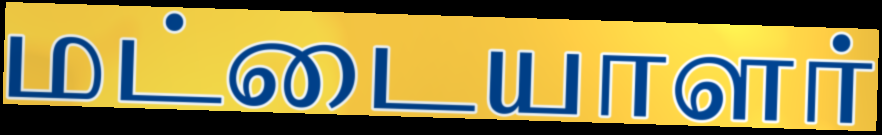
மட்டையாளர்